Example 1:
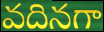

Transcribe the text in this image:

వదినగా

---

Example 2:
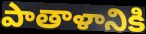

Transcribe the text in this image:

పాతాళానికి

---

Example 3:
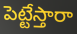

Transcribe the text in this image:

పెట్టేస్తారా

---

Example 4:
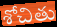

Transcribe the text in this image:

శోచితు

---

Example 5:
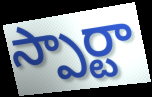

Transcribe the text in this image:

స్పార్టా